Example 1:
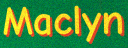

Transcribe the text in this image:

Maclyn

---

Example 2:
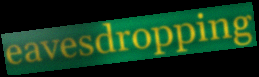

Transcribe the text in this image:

eavesdropping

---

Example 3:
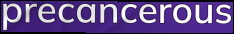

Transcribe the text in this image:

precancerous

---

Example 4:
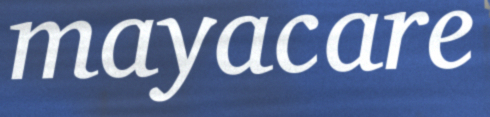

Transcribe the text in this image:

mayacare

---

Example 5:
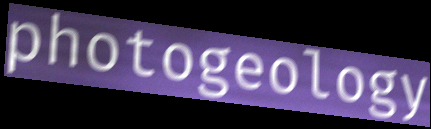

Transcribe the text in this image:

photogeology